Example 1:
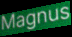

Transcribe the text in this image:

Magnus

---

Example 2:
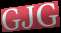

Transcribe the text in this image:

GJG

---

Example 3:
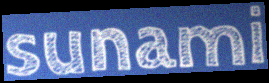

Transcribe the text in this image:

sunami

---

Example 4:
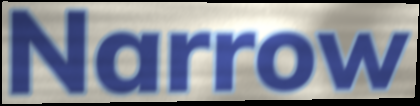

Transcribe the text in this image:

Narrow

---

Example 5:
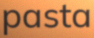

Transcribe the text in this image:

pasta